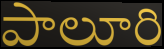
పాలూరి